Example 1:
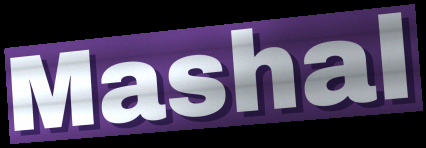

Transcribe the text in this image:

Mashal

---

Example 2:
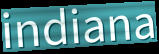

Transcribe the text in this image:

indiana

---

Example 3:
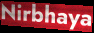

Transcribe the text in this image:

Nirbhaya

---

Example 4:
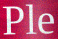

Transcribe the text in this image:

Ple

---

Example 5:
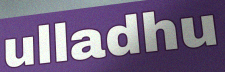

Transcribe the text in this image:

ulladhu